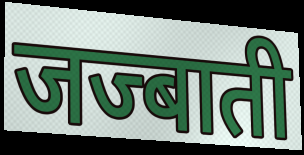
जज्बाती